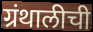
ग्रंथालीची